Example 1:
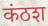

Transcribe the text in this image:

कंठश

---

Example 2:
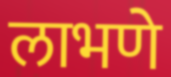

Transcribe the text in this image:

लाभणे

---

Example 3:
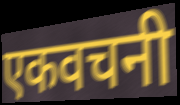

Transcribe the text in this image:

एकवचनी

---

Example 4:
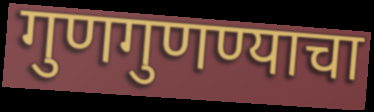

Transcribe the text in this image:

गुणगुणण्याचा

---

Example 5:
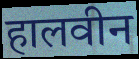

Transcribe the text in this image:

हालवीन